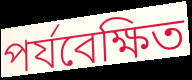
পৰ্যবেক্ষিত